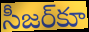
సీజర్‌కూ